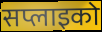
सप्लाइको